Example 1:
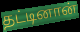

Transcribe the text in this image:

தட்டினான்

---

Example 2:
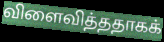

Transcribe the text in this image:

விளைவித்ததாகக்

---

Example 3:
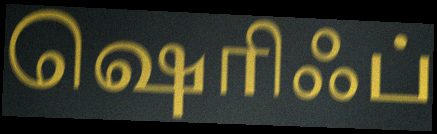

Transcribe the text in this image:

ஷெரிஃப்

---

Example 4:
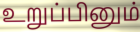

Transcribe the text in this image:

உறுப்பினும்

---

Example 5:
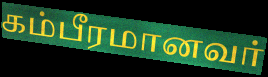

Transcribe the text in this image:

கம்பீரமானவர்